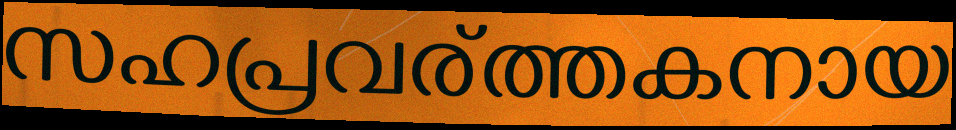
സഹപ്രവര്ത്തകനായ